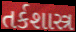
તર્કશાસ્ત્ર